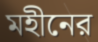
মহীনের